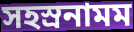
সহস্রনামম